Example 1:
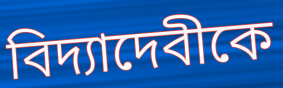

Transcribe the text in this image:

বিদ্যাদেবীকে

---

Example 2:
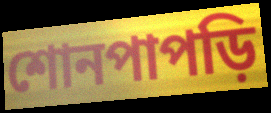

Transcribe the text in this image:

শোনপাপড়ি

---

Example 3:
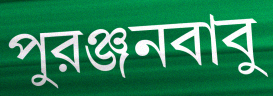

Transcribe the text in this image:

পুরঞ্জনবাবু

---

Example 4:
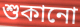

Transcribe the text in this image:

শুকানো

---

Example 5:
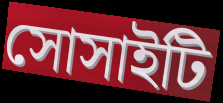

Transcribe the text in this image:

সোসাইটি